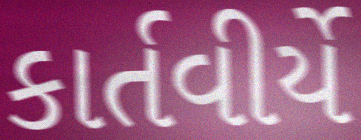
કાર્તવીર્યે